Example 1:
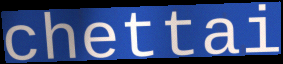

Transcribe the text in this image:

chettai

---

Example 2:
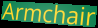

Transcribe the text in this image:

Armchair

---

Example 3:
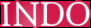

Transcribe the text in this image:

INDO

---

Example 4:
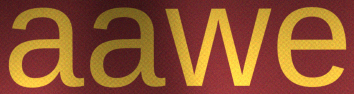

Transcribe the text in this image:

aawe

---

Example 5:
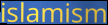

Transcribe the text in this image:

islamism